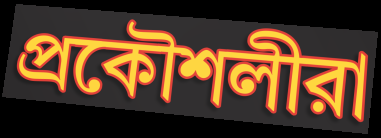
প্রকৌশলীরা